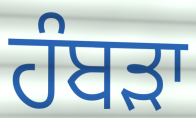
ਹੰਬਡ਼ਾ